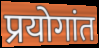
प्रयोगांत